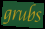
grubs